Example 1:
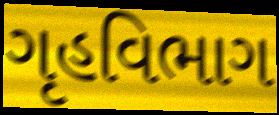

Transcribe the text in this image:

ગૃહવિભાગ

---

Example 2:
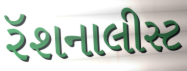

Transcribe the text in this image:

રૅશનાલીસ્ટ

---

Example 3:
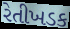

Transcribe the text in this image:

રેતીખડક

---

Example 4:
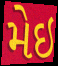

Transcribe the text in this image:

મેઇ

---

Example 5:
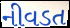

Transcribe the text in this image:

નીવડત